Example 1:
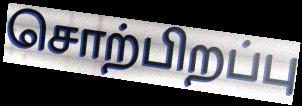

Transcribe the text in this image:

சொற்பிறப்பு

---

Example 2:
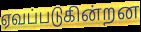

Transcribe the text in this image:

ஏவப்படுகின்றன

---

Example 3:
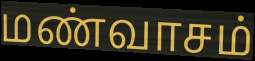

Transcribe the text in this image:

மண்வாசம்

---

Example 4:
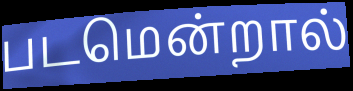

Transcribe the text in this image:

படமென்றால்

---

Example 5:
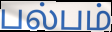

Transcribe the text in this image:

பல்பம்